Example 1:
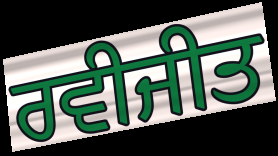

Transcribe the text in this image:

ਰਵੀਜੀਤ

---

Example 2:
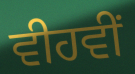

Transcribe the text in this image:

ਵੀਹਵੀਂ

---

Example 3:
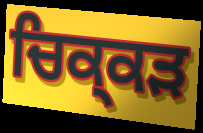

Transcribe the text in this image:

ਚਿਕ੍ਕੜ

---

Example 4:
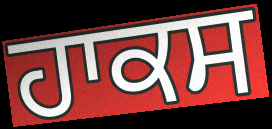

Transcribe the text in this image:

ਹਾਕਸ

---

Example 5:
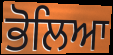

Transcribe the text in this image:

ਭੋਲਿਆ